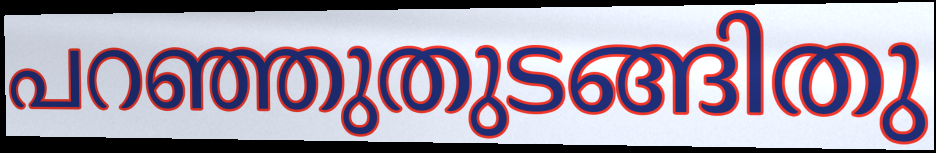
പറഞ്ഞുതുടങ്ങിതു